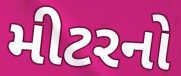
મીટરનો